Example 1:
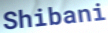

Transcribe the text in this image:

Shibani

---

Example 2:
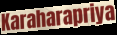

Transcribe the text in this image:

Karaharapriya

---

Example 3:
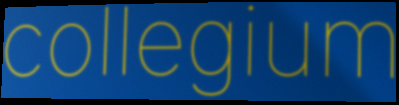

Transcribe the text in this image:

collegium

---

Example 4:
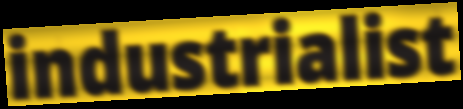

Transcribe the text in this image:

industrialist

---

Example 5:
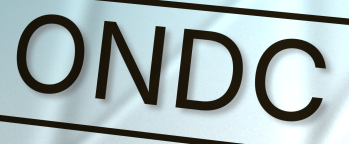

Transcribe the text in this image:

ONDC